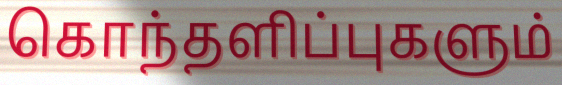
கொந்தளிப்புகளும்